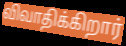
விவாதிக்கிறார்